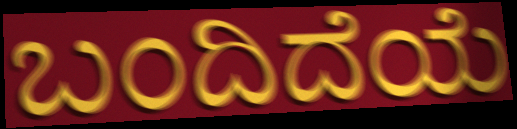
ಬಂದಿದೆಯೆ